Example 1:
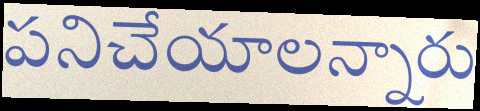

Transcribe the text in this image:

పనిచేయాలన్నారు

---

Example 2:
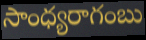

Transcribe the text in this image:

సాంధ్యరాగంబు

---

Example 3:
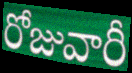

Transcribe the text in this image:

రోజువారీ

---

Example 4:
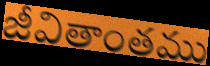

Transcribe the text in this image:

జీవితాంతము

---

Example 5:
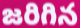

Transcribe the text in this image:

జరిగిన